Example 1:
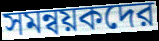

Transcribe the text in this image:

সমন্বয়কদের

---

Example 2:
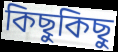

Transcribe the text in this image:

কিছুকিছু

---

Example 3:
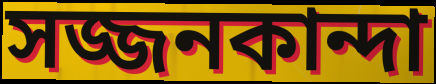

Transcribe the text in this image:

সজ্জনকান্দা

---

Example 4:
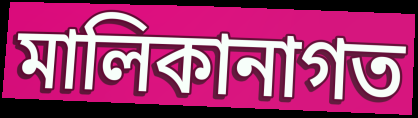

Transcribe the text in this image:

মালিকানাগত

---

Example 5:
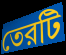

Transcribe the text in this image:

তেরটি